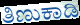
ತಿಣುಕಾಡಿ